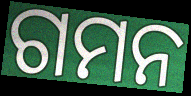
ଗମନ